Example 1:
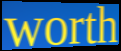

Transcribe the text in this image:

worth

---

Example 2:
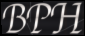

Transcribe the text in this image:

BPH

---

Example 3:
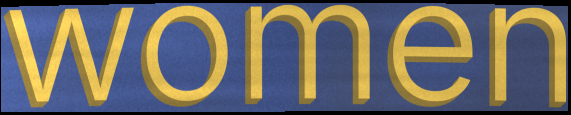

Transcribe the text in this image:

women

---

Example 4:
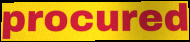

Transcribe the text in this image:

procured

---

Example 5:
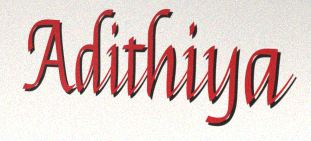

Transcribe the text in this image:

Adithiya